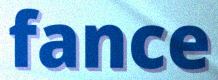
fance